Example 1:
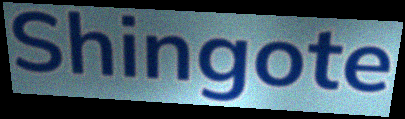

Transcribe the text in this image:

Shingote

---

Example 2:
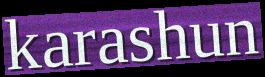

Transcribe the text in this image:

karashun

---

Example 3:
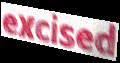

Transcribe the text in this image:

excised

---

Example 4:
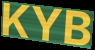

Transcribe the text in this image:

KYB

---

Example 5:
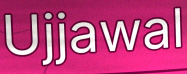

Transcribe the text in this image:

Ujjawal